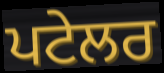
ਪਟੇਲਰ